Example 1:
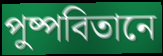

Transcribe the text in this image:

পুষ্পবিতানে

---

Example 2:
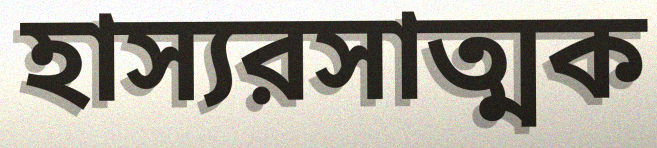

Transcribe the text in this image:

হাস্যরসাত্মক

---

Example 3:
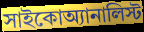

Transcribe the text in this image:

সাইকোঅ্যানালিস্ট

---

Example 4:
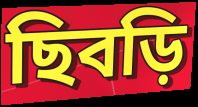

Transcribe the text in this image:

ছিবড়ি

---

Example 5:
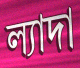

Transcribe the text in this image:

ল্যাদা